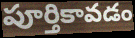
పూర్తికావడం